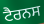
ਟੈਰਨਸ